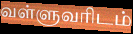
வள்ளுவரிடம்